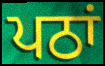
ਪਠਾਂ